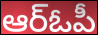
ఆర్ఓపీ